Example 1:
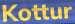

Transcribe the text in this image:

Kottur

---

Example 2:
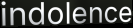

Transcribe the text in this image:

indolence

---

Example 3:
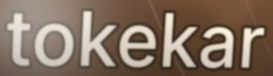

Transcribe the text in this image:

tokekar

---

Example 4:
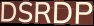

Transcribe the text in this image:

DSRDP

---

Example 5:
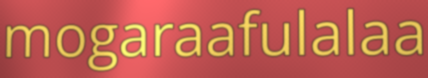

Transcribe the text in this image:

mogaraafulalaa